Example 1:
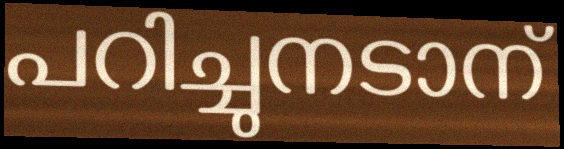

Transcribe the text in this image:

പറിച്ചുനടാന്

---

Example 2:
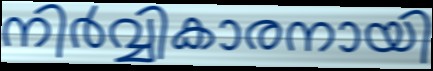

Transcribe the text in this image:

നിർവ്വികാരനായി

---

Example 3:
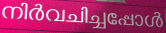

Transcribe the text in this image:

നിർവചിച്ചപ്പോൾ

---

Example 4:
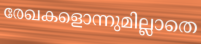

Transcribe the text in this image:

രേഖകളൊന്നുമില്ലാതെ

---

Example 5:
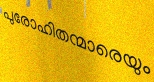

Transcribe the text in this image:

പുരോഹിതന്മാരെയും